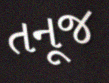
તનૂજ